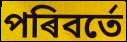
পৰিবৰ্তে